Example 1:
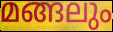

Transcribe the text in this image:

മങ്ങലും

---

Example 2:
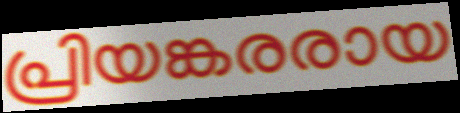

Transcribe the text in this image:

പ്രിയങ്കരരായ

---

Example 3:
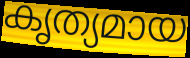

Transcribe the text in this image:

കൃത്യമായ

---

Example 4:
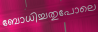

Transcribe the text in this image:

ബോധിച്ചതുപോലെ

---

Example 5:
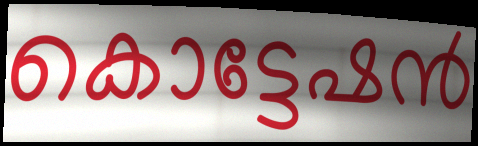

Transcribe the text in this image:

കൊട്ടേഷൻ